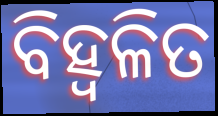
ବିହ୍ୱଳିତ